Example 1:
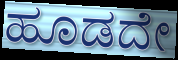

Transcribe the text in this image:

ಹೂಡದೇ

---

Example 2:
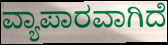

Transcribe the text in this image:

ವ್ಯಾಪಾರವಾಗಿದೆ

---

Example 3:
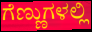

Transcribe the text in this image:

ಗೆಣ್ಣುಗಳಲ್ಲಿ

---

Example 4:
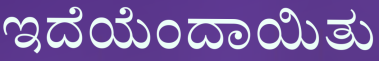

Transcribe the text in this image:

ಇದೆಯೆಂದಾಯಿತು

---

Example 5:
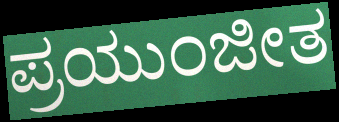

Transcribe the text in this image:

ಪ್ರಯುಂಜೀತ